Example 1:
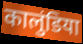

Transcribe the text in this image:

कालुंडिया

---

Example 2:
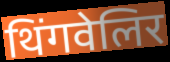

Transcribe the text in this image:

थिंगवेलिर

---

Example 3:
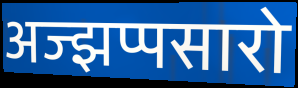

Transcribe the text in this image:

अज्झप्पसारो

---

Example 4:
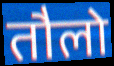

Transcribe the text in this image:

तौलो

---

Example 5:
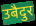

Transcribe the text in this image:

उबैदुर